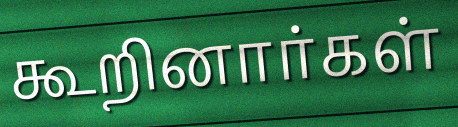
கூறினார்கள்